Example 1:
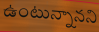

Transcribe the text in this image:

ఉంటున్నానని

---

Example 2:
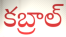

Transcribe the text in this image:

కబ్రాల్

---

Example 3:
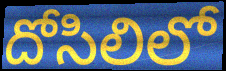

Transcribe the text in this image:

దోసిలిలో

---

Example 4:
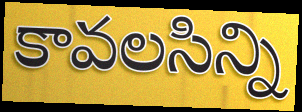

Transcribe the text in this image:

కావలసిన్ని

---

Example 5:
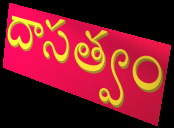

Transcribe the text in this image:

దాసత్వం